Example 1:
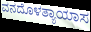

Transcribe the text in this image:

ವನದೊಳತ್ಯಾಯಾಸ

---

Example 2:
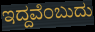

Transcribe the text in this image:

ಇದ್ದವೆಂಬುದು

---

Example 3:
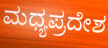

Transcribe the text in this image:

ಮಧ್ಯಪ್ರದೇಶ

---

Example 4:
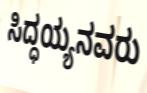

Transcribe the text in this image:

ಸಿದ್ಧಯ್ಯನವರು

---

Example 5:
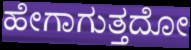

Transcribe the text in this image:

ಹೇಗಾಗುತ್ತದೋ